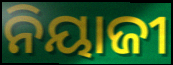
ନିୟାଜୀ